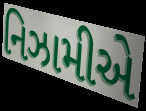
નિઝામીએ